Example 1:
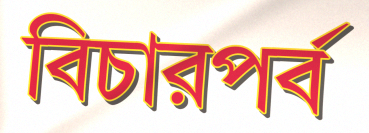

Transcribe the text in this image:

বিচারপর্ব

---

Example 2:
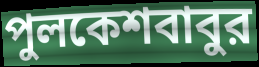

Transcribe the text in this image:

পুলকেশবাবুর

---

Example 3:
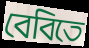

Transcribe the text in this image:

বেবিতে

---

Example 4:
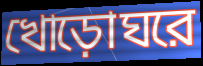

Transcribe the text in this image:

খোড়োঘরে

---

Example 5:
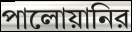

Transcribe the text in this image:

পালোয়ানির